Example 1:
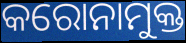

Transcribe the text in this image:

କରୋନାମୁକ୍ତ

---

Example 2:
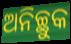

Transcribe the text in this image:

ଅନିଚ୍ଛୁକ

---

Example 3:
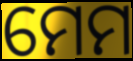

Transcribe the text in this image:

ମେମ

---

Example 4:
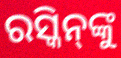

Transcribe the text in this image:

ରସ୍କିନ୍‌ଙ୍କୁ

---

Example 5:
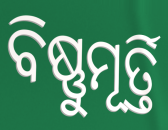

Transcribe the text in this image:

ବିଷ୍ଣୁମୂର୍ତ୍ତି